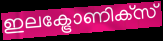
ഇലക്ട്രോണിക്‌സ്